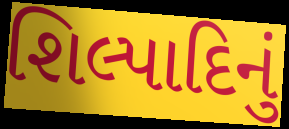
શિલ્પાદિનું